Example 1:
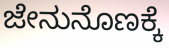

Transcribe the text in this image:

ಜೇನುನೊಣಕ್ಕೆ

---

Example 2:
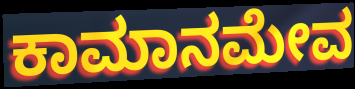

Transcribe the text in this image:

ಕಾಮಾನಮೇವ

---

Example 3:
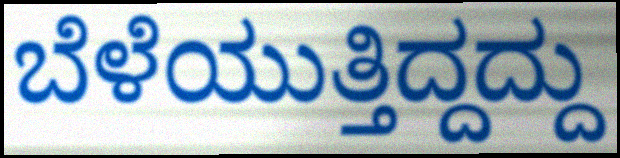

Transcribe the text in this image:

ಬೆಳೆಯುತ್ತಿದ್ದದ್ದು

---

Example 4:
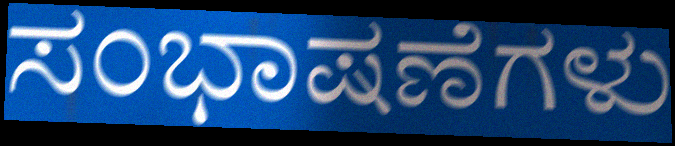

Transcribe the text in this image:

ಸಂಭಾಷಣೆಗಳು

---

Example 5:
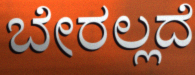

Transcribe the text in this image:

ಬೇರಲ್ಲದೆ